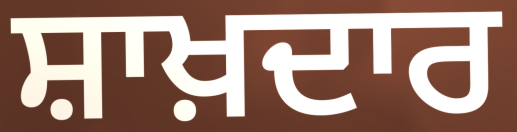
ਸ਼ਾਖ਼ਦਾਰ